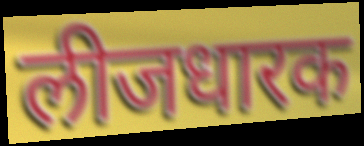
लीजधारक